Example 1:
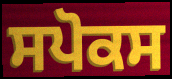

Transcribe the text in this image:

ਸਪੋਕਸ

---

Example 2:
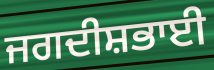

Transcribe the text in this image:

ਜਗਦੀਸ਼ਭਾਈ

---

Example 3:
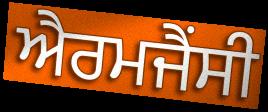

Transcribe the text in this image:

ਐਰਮਜੈਂਸੀ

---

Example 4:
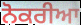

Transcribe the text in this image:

ਨੋਕਰੀਆ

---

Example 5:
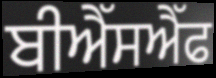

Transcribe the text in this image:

ਬੀਐੱਸਐੱਫ